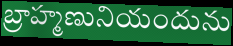
బ్రాహ్మణునియందును